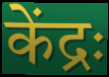
केंद्रः